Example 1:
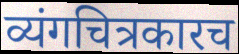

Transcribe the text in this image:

व्यंगचित्रकारच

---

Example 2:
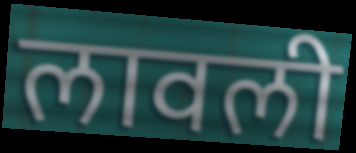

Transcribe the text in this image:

लावली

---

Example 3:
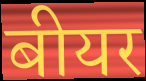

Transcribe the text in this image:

बीयर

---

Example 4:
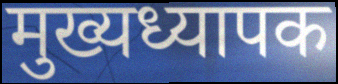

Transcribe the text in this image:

मुख्यध्यापक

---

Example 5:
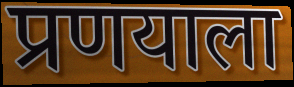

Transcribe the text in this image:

प्रणयाला